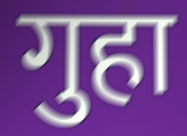
गुहा